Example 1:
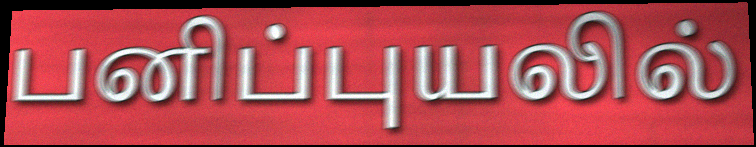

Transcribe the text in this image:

பனிப்புயலில்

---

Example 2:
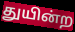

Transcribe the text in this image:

துயின்ற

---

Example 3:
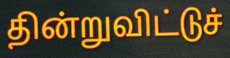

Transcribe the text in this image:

தின்றுவிட்டுச்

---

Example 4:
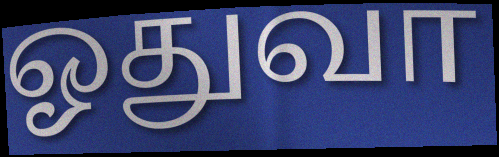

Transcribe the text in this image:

ஓதுவா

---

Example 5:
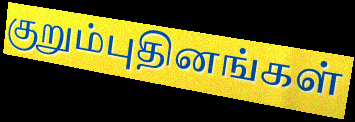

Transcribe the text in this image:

குறும்புதினங்கள்